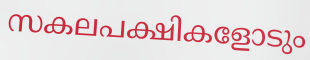
സകലപക്ഷികളോടും